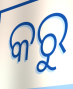
କରୁ